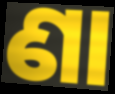
ଣା